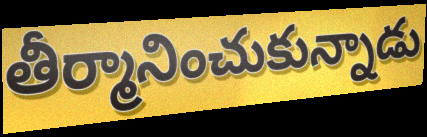
తీర్మానించుకున్నాడు